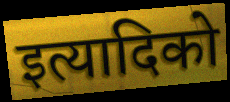
इत्यादिको